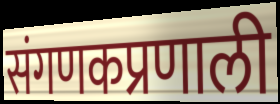
संगणकप्रणाली